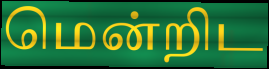
மென்றிட